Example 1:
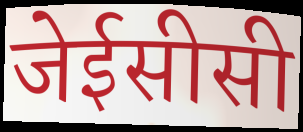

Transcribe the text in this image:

जेईसीसी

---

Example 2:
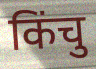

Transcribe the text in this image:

किंचु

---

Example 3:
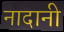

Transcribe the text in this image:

नादानी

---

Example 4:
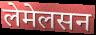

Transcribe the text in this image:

लेमेलसन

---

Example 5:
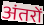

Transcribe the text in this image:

अंतरों